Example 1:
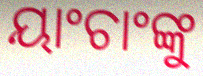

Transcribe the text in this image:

ୟାଂଚାଂଙ୍କୁ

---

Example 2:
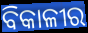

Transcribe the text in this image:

ବିକାଳୀର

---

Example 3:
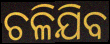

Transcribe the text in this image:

ଚଳିଯିବ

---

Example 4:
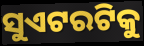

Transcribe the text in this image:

ସୁଏଟରଟିକୁ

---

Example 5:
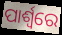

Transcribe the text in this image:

ପାର୍ଶ୍ଵରେ